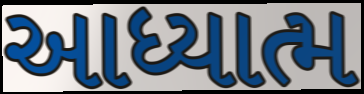
આધ્યાત્મ